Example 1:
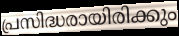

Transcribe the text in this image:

പ്രസിദ്ധരായിരിക്കും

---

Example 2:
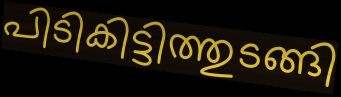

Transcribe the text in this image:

പിടികിട്ടിത്തുടങ്ങി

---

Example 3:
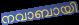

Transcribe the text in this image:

നവാബായി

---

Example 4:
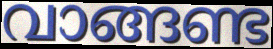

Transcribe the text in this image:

വാങ്ങണ്ട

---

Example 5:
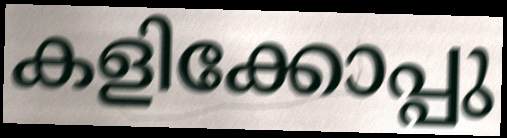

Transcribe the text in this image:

കളിക്കോപ്പു